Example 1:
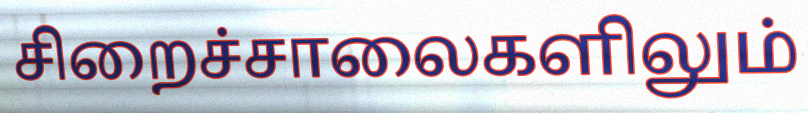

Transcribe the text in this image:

சிறைச்சாலைகளிலும்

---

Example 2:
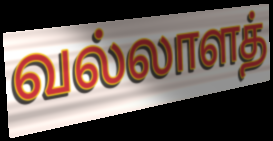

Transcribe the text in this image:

வல்லாளத்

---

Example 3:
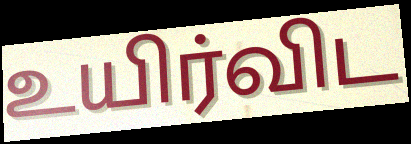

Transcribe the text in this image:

உயிர்விட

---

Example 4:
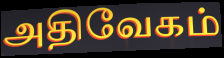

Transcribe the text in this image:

அதிவேகம்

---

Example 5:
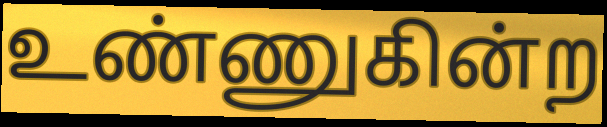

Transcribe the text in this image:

உண்ணுகின்ற